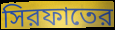
সিরফাতের